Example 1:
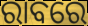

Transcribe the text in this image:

ରାବରେ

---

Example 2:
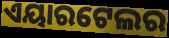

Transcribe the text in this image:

ଏୟାରଟେଲର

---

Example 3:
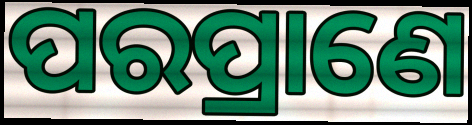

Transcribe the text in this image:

ପରପ୍ରାଣେ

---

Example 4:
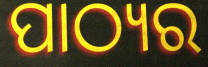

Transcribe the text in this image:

ପାଠ୍ୟର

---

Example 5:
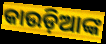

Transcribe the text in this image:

କାଉଡ଼ିଆଙ୍କ